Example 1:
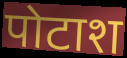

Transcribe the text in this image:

पोटाश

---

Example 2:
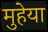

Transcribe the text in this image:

मुहेया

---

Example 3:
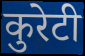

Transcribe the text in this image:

कुरेटी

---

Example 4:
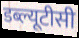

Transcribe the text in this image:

डब्ल्यूटीसी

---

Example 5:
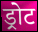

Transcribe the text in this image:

ड्रोट